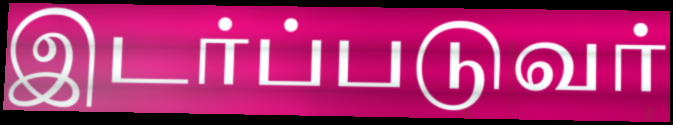
இடர்ப்படுவர்